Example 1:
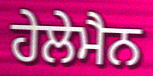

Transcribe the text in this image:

ਹੇਲੇਮੈਨ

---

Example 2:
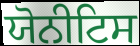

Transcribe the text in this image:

ਯੋਨੀਟਿਸ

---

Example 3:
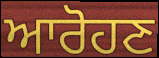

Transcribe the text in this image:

ਆਰੋਹਣ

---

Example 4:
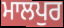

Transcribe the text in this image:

ਮਾਲਪੁਰ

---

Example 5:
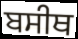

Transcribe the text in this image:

ਬਸੀਥ